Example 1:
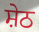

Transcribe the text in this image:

ਸ਼ੇਠ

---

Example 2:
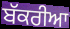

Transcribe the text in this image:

ਬੱਕਰੀਆ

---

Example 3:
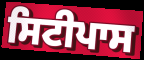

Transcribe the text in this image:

ਸਿਟੀਪਾਸ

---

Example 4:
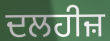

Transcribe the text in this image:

ਦਲਹੀਜ਼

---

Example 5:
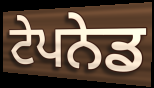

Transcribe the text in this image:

ਟੇਪਨੇਡ